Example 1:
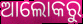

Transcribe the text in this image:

ଆଲୋକରୁ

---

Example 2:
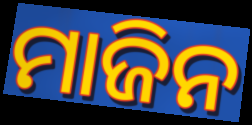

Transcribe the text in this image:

ମାଜିନ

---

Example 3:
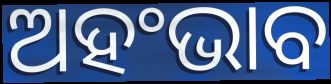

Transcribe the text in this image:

ଅହଂଭାବ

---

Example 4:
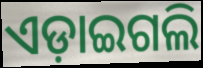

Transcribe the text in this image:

ଏଡ଼ାଇଗଲି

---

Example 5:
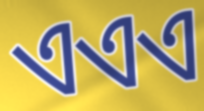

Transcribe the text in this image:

ଏଏଏ